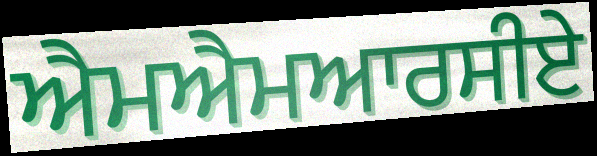
ਐਮਐਮਆਰਸੀਏ